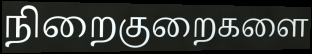
நிறைகுறைகளை